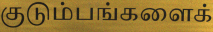
குடும்பங்களைக்